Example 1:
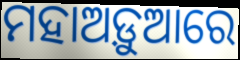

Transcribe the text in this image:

ମହାଅଡ଼ୁଆରେ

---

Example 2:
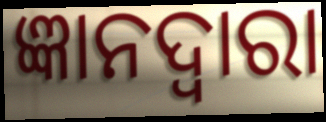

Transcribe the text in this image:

ଜ୍ଞାନଦ୍ଵାରା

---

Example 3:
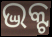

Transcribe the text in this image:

ଦ୍ଭକ୍ଟ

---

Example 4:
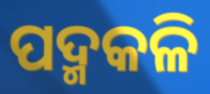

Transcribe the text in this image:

ପଦ୍ମକଳି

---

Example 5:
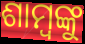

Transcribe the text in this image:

ଶାମ୍ବଙ୍କୁ